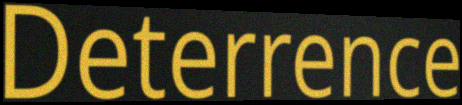
Deterrence